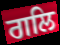
ਗਲਿ